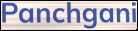
Panchgani